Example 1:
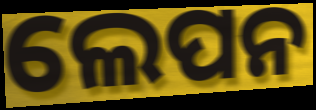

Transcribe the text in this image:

ଲେପନ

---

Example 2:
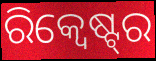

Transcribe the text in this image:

ରିକ୍ୱେଷ୍ଟ୍‌ର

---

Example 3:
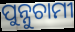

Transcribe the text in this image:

ପୁନ୍ନୁଚାମୀ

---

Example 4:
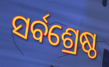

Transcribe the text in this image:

ସର୍ବଶ୍ରେଷ୍ଠ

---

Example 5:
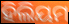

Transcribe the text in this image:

ହିଲିୟମ